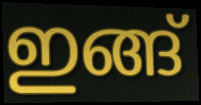
ഇങ്ങ്